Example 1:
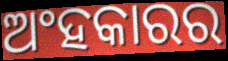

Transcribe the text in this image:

ଅଂହକାରର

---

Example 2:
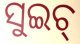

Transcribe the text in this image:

ସୁଇଚ୍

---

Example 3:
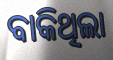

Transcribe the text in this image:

ବାକିଥିଲା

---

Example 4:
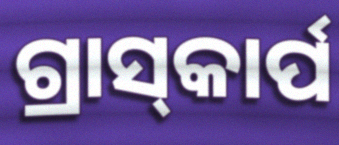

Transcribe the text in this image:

ଗ୍ରାସ୍‌କାର୍ପ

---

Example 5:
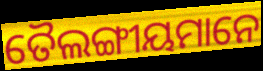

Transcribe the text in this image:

ତୈଲଙ୍ଗୀୟମାନେ